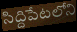
సిద్దిపేటలోని